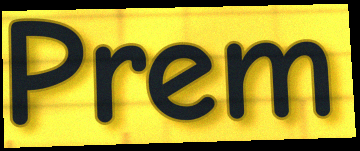
Prem